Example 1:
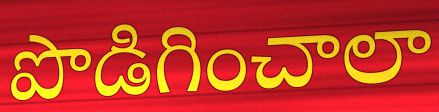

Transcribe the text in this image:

పొడిగించాలా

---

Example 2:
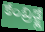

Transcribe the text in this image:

కేంబ్రిడ్జ్లో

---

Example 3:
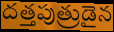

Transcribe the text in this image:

దత్తపుత్రుడైన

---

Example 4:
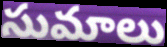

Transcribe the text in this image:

సుమాలు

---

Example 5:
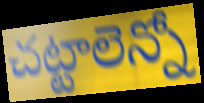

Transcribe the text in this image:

చట్టాలెన్నో